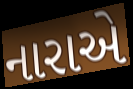
નારાએ